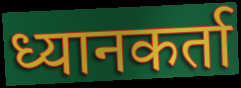
ध्यानकर्ता